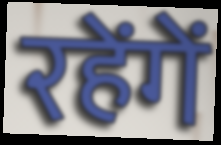
रहेंगें